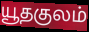
யூதகுலம்